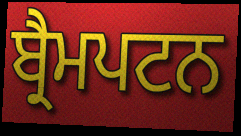
ਬ੍ਰੈਮਪਟਨ